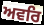
ਅਵਰਿ